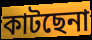
কাটছেনা